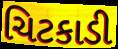
ચિટકાડી